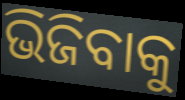
ଭିଜିବାକୁ